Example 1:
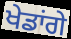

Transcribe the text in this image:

ਖੇਡਾਂਗੇ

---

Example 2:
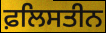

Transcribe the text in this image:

ਫ਼ਲਿਸਤੀਨ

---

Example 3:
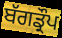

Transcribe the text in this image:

ਬੱਗਡ੍ਰੌਪ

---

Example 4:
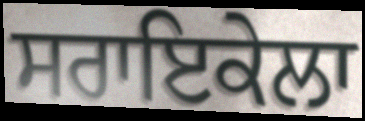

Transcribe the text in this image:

ਸਰਾਇਕੇਲਾ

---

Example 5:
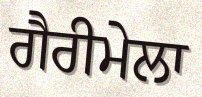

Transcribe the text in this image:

ਗੈਰੀਮੇਲਾ